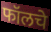
फॉलचे